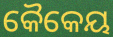
କୈକେୟ